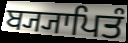
ਬ੍ਯ੍ਯਾਪਿਤੰ